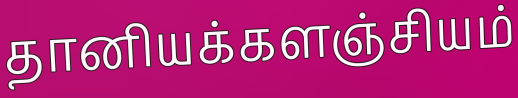
தானியக்களஞ்சியம்